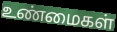
உண்மைகள்